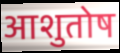
आशुतोष